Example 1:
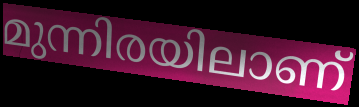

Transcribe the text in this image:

മുന്നിരയിലാണ്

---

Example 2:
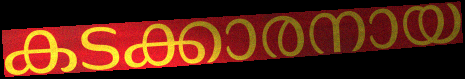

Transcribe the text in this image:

കടക്കാരനായ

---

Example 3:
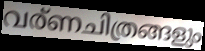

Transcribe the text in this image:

വര്ണചിത്രങ്ങളും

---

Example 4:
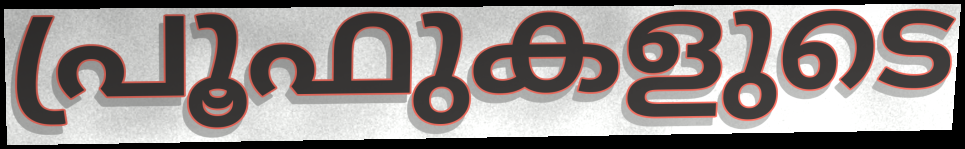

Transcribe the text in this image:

പ്രൂഫുകളുടെ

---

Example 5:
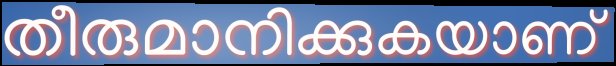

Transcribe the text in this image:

തീരുമാനിക്കുകയാണ്